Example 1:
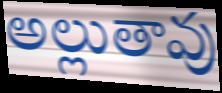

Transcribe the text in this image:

అల్లుతావు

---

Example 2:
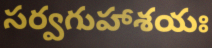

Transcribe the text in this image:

సర్వగుహాశయః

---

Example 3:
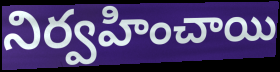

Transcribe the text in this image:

నిర్వహించాయి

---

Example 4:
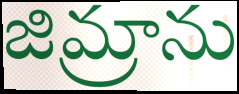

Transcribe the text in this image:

జిమ్రాను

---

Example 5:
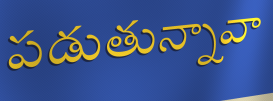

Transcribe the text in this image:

పడుతున్నావా